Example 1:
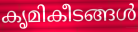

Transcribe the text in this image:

കൃമികീടങ്ങൾ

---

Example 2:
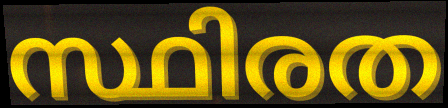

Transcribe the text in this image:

സ്ഥിരത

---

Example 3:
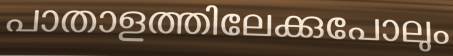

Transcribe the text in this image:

പാതാളത്തിലേക്കുപോലും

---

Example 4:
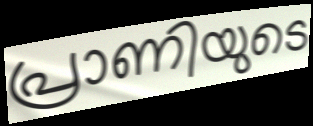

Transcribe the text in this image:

പ്രാണിയുടെ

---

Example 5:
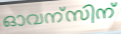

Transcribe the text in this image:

ഓവന്സിന്